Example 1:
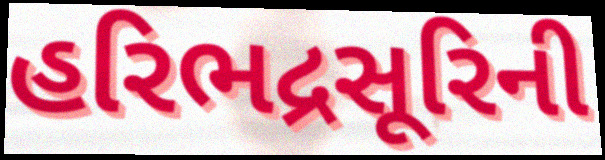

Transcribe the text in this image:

હરિભદ્રસૂરિની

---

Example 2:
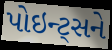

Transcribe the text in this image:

પોઇન્ટ્સને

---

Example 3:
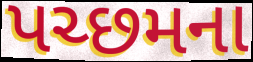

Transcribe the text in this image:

પચ્છમના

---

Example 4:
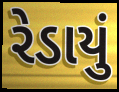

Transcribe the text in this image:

રેડાયું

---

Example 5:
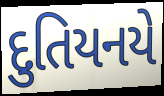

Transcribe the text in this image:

દુતિયનયે